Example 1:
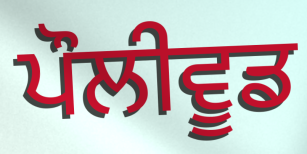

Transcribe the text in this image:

ਪੌਲੀਵੂਡ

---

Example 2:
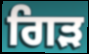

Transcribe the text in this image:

ਗਿੜ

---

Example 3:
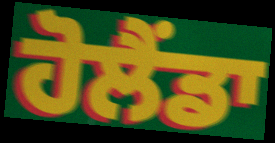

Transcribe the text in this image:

ਹੋਲੈਂਡਾ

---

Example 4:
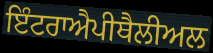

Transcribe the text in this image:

ਇੰਟਰਾਐਪੀਥੈਲੀਅਲ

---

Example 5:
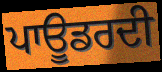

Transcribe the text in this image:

ਪਾਊਡਰਦੀ